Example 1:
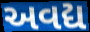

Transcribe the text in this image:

અવદ્ય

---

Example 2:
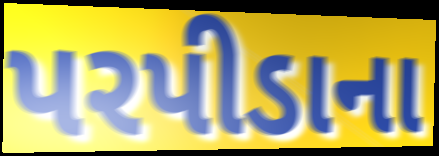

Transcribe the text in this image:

પરપીડાના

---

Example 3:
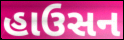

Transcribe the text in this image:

હાઉસન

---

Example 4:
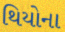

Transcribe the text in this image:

થિયોના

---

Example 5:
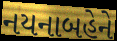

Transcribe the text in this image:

નયનાબહેને